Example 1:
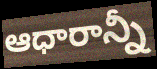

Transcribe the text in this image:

ఆధారాన్నీ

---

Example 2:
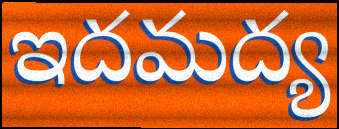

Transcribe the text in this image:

ఇదమద్య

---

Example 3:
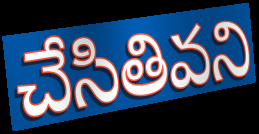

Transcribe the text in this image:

చేసితివని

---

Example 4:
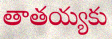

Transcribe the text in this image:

తాతయ్యకు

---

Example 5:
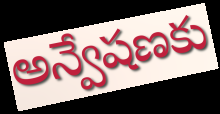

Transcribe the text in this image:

అన్వేషణకు